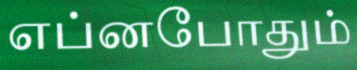
எப்னபோதும்